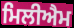
ਮਿਲੀਐਮ